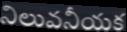
నిలువనీయక